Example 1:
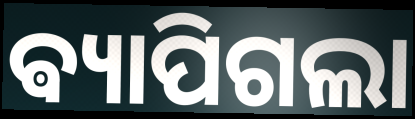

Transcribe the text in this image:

ଵ୍ୟାପିଗଲା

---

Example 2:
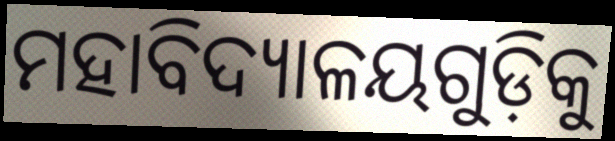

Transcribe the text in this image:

ମହାବିଦ୍ୟାଳୟଗୁଡ଼ିକୁ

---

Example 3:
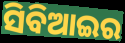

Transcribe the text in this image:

ସିବିଆଇର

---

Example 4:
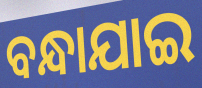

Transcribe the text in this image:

ବନ୍ଧାଯାଇ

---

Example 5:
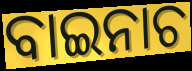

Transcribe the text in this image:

ବାଇନାଚ